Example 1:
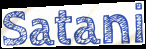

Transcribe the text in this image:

Satani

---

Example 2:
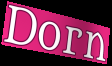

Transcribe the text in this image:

Dorn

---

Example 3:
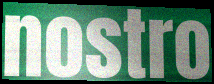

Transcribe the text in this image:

nostro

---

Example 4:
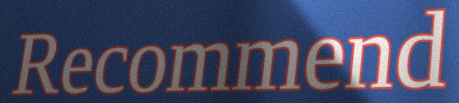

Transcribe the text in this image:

Recommend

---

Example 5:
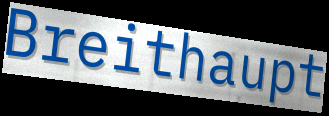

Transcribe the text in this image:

Breithaupt